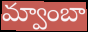
మ్వాంబా